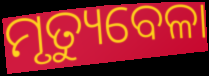
ମୃତ୍ୟୁବେଳା